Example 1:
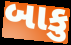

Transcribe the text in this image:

બાકુ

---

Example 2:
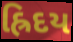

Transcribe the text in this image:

હ્રિદય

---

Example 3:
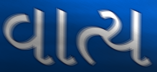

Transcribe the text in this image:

વાત્ય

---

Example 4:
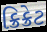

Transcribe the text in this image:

ક્રિક્રેટ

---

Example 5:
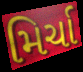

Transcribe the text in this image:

મિર્ચા